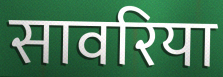
सावरिया